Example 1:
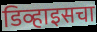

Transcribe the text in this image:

डिव्हाइसचा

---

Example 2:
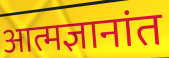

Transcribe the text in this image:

आत्मज्ञानांत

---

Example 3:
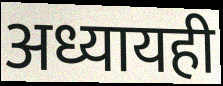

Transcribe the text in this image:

अध्यायही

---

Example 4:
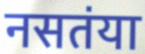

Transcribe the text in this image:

नसतंया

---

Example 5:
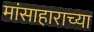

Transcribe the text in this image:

मांसाहाराच्या